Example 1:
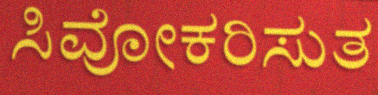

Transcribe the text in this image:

ಸಿವೋಕರಿಸುತ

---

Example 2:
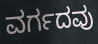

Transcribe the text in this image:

ವರ್ಗದವು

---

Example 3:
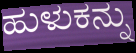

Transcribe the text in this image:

ಹುಳುಕನ್ನು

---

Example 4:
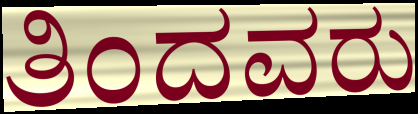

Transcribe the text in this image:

ತಿಂದವರು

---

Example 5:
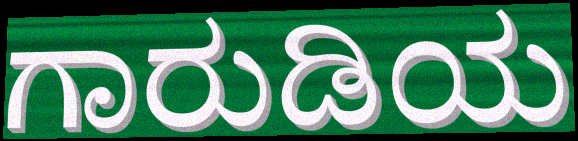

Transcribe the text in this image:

ಗಾರುಡಿಯ